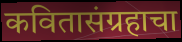
कवितासंग्रहाचा